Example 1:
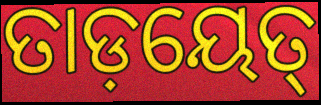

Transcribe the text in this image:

ତାଡ଼ୟେତ୍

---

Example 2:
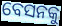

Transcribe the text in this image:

ବେସନକୁ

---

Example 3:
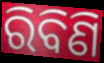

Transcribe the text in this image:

ରିବିଣି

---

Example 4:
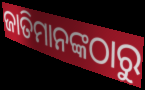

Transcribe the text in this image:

ଜାତିମାନଙ୍କଠାରୁ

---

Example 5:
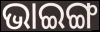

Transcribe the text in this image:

ଭାଇଙ୍ଗ